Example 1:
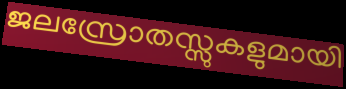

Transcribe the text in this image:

ജലസ്രോതസ്സുകളുമായി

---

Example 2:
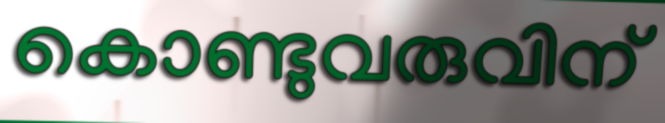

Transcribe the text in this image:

കൊണ്ടുവരുവിന്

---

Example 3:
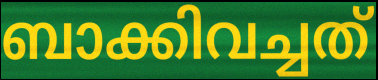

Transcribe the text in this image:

ബാക്കിവച്ചത്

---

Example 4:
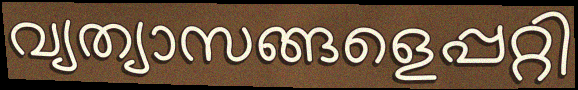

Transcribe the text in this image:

വ്യത്യാസങ്ങളെപ്പറ്റി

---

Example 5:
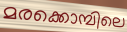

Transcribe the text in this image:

മരക്കൊമ്പിലെ